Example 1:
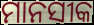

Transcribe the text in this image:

ମାନସୀକ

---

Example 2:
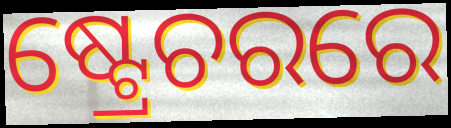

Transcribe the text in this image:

ଷ୍ଟ୍ରେଚରରେ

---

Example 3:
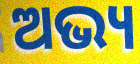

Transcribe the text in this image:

ଅଭ୍ୟ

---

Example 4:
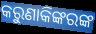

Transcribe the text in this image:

କରୁଣାକିଙ୍କରଙ୍କ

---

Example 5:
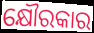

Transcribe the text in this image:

କ୍ଷୌରକାର